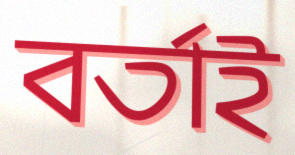
বৰ্তাই